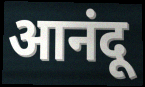
आनंदू